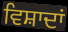
ਵਿਸ਼ਾਦਾਂ